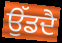
ਉੱਡਦੈ